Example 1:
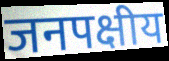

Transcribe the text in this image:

जनपक्षीय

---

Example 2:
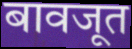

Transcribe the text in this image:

बावजूत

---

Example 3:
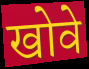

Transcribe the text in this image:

खोवे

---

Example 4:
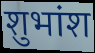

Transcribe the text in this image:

शुभांश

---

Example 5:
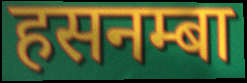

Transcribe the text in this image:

हसनम्बा